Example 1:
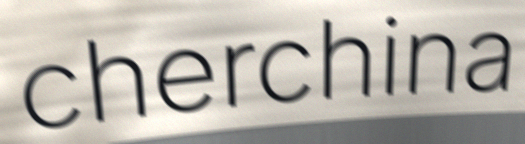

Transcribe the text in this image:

cherchina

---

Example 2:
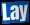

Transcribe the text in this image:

Lay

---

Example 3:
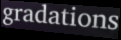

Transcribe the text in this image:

gradations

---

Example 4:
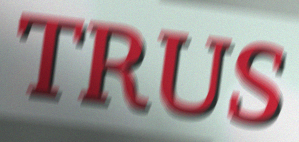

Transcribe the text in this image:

TRUS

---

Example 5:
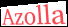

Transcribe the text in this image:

Azolla